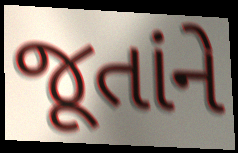
જૂતાંને